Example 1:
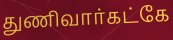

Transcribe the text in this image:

துணிவார்கட்கே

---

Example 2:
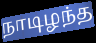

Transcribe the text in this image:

நாடிழந்த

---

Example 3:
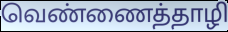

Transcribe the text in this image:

வெண்ணைத்தாழி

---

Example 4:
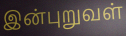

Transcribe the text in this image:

இன்புறுவள்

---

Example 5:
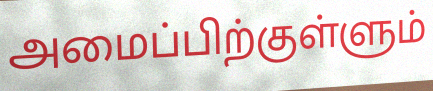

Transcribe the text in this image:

அமைப்பிற்குள்ளும்